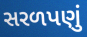
સરળપણું